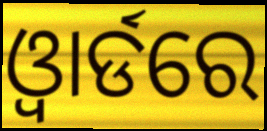
ଓ୍ବାର୍ଡରେ